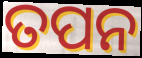
ତପନ